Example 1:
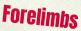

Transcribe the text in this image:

Forelimbs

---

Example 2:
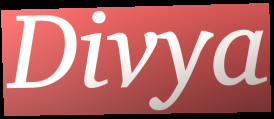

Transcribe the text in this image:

Divya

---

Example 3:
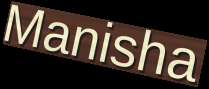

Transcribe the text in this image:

Manisha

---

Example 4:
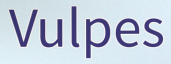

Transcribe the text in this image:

Vulpes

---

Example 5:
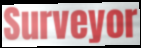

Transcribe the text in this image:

Surveyor